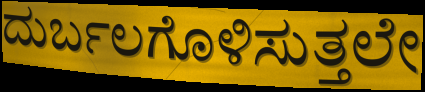
ದುರ್ಬಲಗೊಳಿಸುತ್ತಲೇ